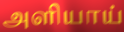
அளியாய்